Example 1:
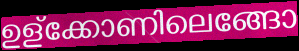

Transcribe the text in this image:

ഉള്ക്കോണിലെങ്ങോ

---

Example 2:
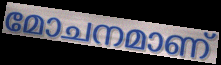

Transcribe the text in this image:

മോചനമാണ്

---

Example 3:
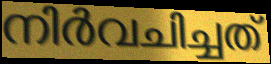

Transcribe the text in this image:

നിർവചിച്ചത്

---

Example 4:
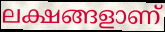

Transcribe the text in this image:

ലക്ഷങ്ങളാണ്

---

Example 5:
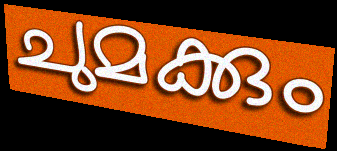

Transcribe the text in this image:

ചുമക്കും